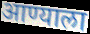
आण्याला